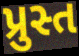
પ્રુસ્ત